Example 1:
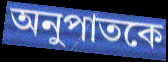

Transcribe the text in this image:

অনুপাতকে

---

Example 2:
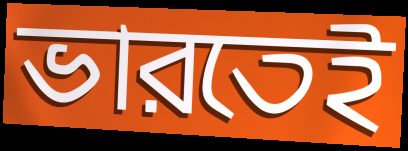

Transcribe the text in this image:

ভারতেই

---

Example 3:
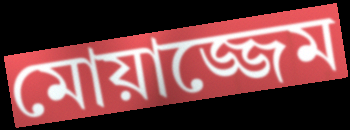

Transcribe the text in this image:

মোয়াজ্জেম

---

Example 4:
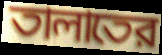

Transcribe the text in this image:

তালাতের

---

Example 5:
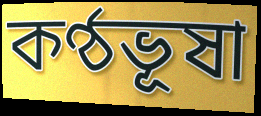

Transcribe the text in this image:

কণ্ঠভূষা